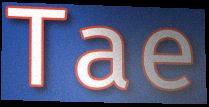
Tae